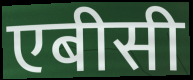
एबीसी